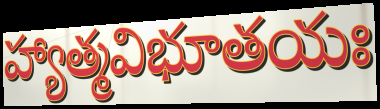
హ్యాత్మవిభూతయః